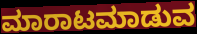
ಮಾರಾಟಮಾಡುವ